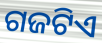
ଗଜଟିଏ